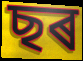
ছৰ